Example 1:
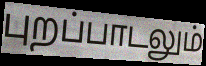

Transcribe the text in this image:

புறப்பாடலும்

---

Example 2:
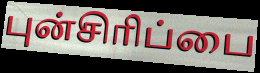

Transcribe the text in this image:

புன்சிரிப்பை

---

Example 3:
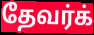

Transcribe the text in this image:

தேவர்க்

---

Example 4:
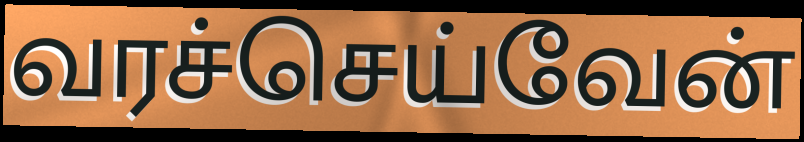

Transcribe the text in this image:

வரச்செய்வேன்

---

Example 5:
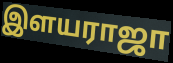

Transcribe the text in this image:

இளயராஜா